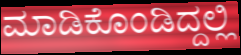
ಮಾಡಿಕೊಂಡಿದ್ದಲ್ಲಿ